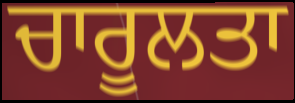
ਚਾਰੂਲਤਾ